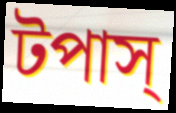
টপাস্